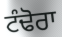
ਟੰਢੋਰਾ